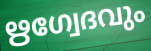
ഋഗ്വേദവും